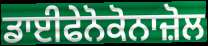
ਡਾਈਫੇਨੋਕੋਨਾਜ਼ੋਲ